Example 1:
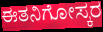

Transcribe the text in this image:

ಈತನಿಗೋಸ್ಕರ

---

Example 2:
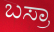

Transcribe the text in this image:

ಬಸ್ರಾ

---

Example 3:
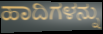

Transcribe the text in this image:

ಹಾದಿಗಳನ್ನು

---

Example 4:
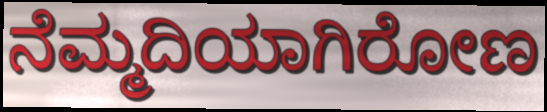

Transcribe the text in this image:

ನೆಮ್ಮದಿಯಾಗಿರೋಣ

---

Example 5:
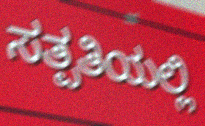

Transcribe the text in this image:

ಸತ್ಪತಿಯಲ್ಲಿ